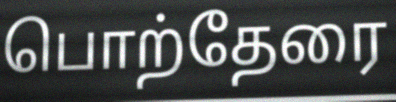
பொற்தேரை